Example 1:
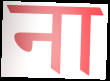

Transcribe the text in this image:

ना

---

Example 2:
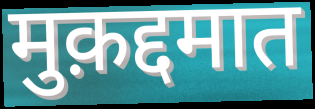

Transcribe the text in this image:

मुक़द्दमात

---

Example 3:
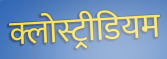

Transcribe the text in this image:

क्लोस्ट्रीडियम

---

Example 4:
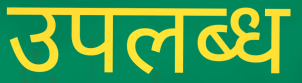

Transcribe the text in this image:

उपलब्ध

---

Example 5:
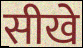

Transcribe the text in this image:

सीखे